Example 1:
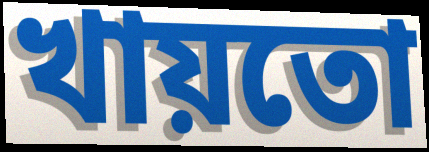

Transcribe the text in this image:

খায়তো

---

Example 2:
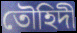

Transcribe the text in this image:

তৌহিদী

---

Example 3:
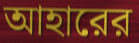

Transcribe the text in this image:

আহারের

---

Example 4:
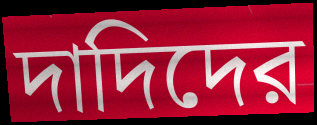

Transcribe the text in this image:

দাদিদের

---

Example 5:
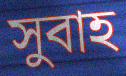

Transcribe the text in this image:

সুবাহ